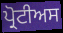
ਪ੍ਰੋਟੀਅਸ